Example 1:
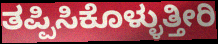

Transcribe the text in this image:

ತಪ್ಪಿಸಿಕೊಳ್ಳುತ್ತೀರಿ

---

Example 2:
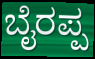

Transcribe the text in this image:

ಬೈರಪ್ಪ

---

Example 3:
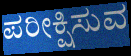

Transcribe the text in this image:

ಪರೀಕ್ಷಿಸುವ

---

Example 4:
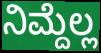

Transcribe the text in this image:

ನಿಮ್ದೆಲ್ಲ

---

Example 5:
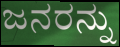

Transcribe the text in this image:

ಜನರನ್ನು